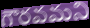
గౌరవమని